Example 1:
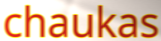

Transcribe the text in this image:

chaukas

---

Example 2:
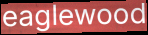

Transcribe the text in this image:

eaglewood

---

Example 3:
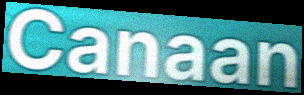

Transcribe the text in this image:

Canaan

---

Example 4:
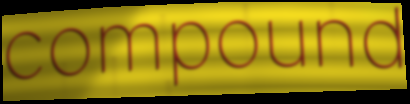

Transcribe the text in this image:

compound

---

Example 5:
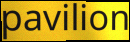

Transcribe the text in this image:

pavilion